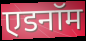
एडनॉम